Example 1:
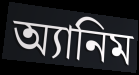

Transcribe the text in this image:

অ্যানিম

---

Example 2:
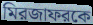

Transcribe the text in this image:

মিরজাফরকে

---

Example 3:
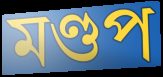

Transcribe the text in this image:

মণ্ডপ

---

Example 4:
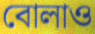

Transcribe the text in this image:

বোলাও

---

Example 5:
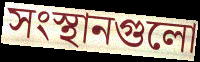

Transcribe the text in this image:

সংস্থানগুলো